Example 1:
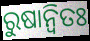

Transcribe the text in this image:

ରୁଷାନ୍ଵିତଃ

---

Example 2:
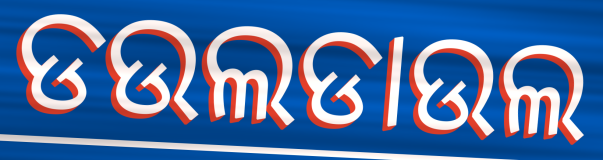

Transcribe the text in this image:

ଡଉଲଡାଉଲ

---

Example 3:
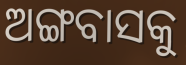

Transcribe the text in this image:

ଅଙ୍ଗବାସକୁ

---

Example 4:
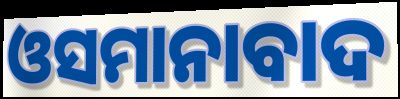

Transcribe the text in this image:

ଓସମାନାବାଦ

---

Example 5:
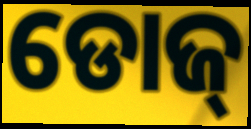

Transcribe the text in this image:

ଡୋଜ୍